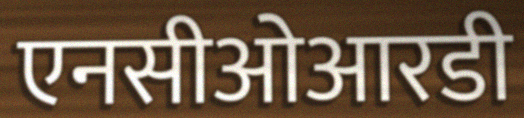
एनसीओआरडी